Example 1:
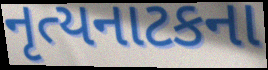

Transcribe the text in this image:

નૃત્યનાટકના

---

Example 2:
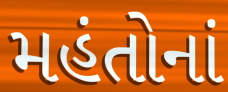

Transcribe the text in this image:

મહંતોનાં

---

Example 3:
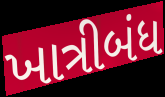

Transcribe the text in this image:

ખાત્રીબંધ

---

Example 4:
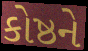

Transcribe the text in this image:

કોષ્ઠને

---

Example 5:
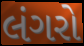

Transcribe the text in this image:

લંગરો